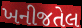
ખનીજતેલ